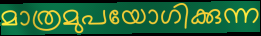
മാത്രമുപയോഗിക്കുന്ന